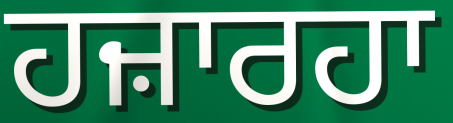
ਹਜ਼ਾਰਹਾ